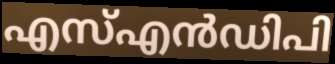
എസ്എൻഡിപി